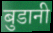
बुडानी